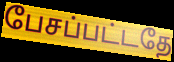
பேசப்பட்டதே